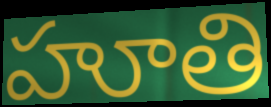
హూతి